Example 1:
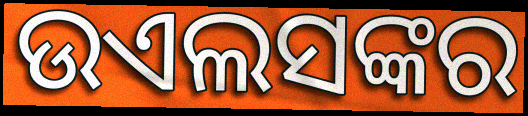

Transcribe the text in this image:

ଉଏଲସଙ୍କର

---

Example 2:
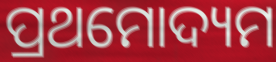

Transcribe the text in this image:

ପ୍ରଥମୋଦ୍ୟମ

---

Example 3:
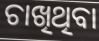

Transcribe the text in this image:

ଚାଖିଥିବା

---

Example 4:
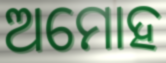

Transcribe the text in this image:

ଅମୋହ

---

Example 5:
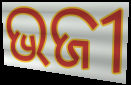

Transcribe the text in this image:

ଭଜୀ